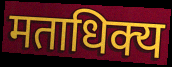
मताधिक्‍य